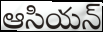
ఆసియన్